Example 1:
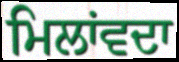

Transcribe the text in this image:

ਮਿਲਾਂਵਦਾ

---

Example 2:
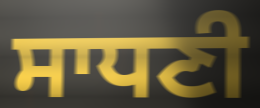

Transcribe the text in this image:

ਸਾਧਣੀ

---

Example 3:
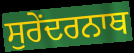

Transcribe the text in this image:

ਸੁਰੇਂਦਰਨਾਥ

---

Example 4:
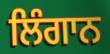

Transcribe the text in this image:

ਲਿੰਗਾਨ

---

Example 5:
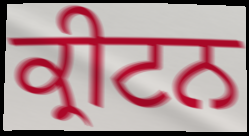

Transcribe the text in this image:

ਕ੍ਰੀਟਨ